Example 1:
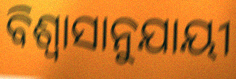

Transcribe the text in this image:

ବିଶ୍ୱାସାନୁଯାୟୀ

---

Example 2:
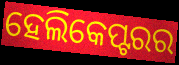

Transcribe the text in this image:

ହେଲିକେପ୍ଟରର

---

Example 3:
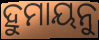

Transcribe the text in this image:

ହୁମାୟନୁ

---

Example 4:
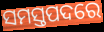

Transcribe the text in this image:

ସମସ୍ତପଦରେ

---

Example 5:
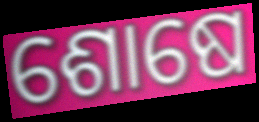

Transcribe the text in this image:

ଶୋଷେ